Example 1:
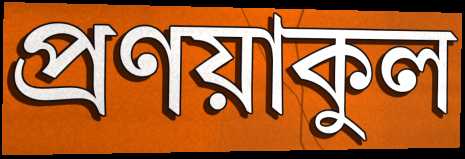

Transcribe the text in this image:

প্রণয়াকুল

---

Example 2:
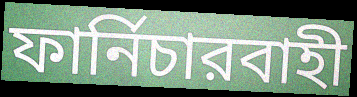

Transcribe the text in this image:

ফার্নিচারবাহী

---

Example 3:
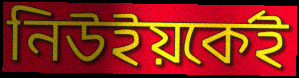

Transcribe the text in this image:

নিউইয়র্কেই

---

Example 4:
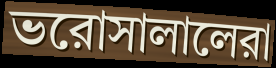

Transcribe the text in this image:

ভরোসালালেরা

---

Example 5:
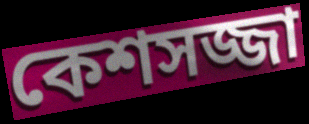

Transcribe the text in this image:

কেশসজ্জা